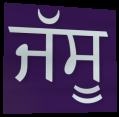
ਜੱਸੂ